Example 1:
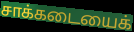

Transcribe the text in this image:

சாக்கடையைக்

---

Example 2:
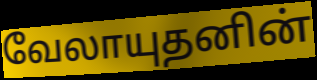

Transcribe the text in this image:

வேலாயுதனின்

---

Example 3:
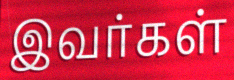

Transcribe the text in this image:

இவர்கள்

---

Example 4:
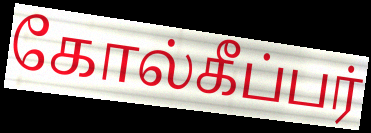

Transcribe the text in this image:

கோல்கீப்பர்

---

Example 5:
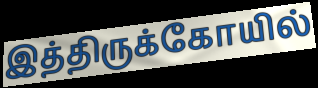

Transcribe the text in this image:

இத்திருக்கோயில்